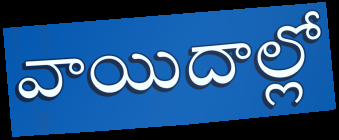
వాయిదాల్లో